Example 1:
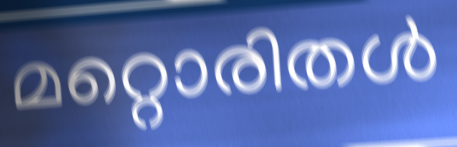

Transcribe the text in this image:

മറ്റൊരിതൾ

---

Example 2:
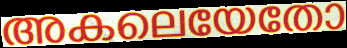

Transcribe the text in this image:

അകലെയേതോ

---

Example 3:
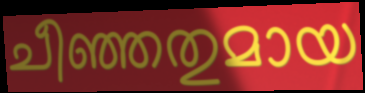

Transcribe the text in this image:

ചീഞ്ഞതുമായ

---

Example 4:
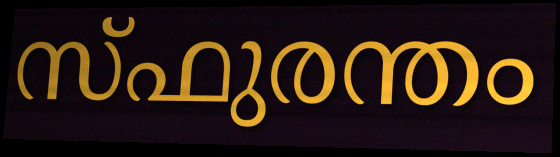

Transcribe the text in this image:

സ്ഫുരന്തം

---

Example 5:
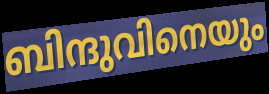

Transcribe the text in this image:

ബിന്ദുവിനെയും